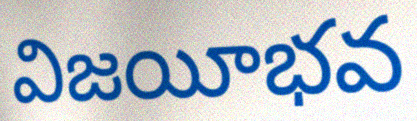
విజయీభవ